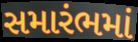
સમારંભમાં